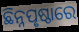
ଛିନ୍ନପୃଷ୍ଠାରେ